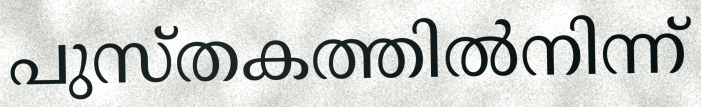
പുസ്തകത്തിൽനിന്ന്